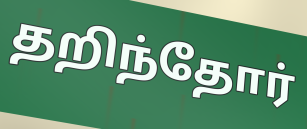
தறிந்தோர்